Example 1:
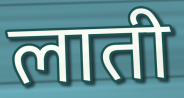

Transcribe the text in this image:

लाती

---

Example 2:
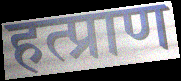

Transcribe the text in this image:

हत्प्राण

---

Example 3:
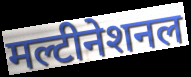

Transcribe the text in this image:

मल्टीनेशनल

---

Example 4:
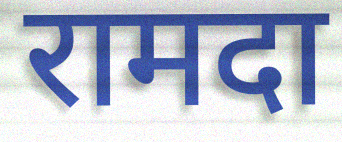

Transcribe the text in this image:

रामदा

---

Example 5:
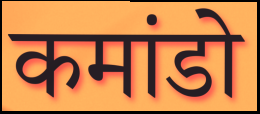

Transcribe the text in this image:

कमांडो